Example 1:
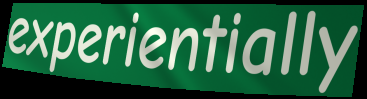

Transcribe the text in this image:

experientially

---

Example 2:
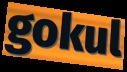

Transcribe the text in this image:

gokul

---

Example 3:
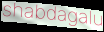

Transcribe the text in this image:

shabdagalu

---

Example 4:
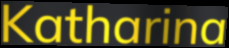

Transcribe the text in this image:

Katharina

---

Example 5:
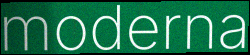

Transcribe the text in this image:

moderna